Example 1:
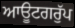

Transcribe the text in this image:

ਆਊਟਗਰੁੱਪ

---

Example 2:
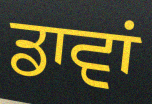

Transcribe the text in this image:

ਡਾਵਾਂ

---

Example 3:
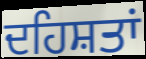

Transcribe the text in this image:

ਦਹਿਸ਼ਤਾਂ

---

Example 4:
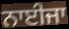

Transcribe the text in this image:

ਨਾਈਜਾ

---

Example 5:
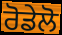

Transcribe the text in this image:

ਰੋਡੇਲੋ